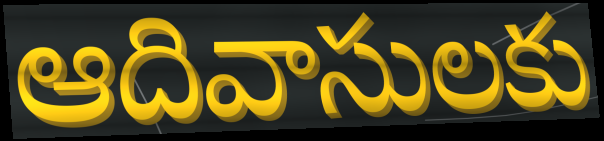
ఆదివాసులకు